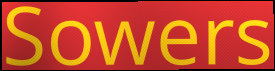
Sowers